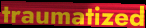
traumatized